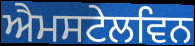
ਐਮਸਟੇਲਵਿਨ